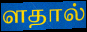
ளதால்